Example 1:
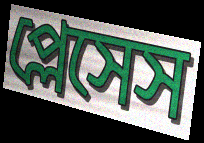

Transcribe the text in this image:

প্লেসেস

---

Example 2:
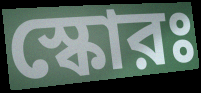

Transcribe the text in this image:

স্কোরঃ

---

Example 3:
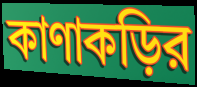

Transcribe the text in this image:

কাণাকড়ির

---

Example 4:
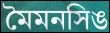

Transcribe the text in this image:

মৈমনসিঙ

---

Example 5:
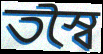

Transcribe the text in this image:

তস্বৈ